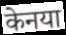
केनया